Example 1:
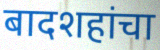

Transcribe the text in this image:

बादशहांचा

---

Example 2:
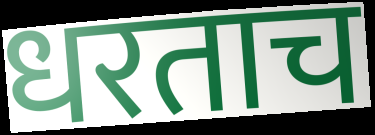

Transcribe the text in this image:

धरताच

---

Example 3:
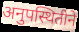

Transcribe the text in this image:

अनुपस्थितीने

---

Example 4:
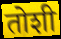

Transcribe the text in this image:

तोशी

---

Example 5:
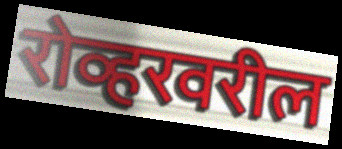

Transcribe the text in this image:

रोव्हरवरील